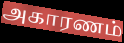
அகாரணம்